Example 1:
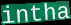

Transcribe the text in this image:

intha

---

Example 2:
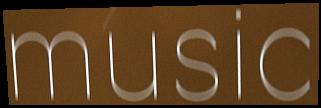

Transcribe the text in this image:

music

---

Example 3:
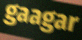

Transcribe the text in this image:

gaagar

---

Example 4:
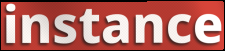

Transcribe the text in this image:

instance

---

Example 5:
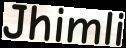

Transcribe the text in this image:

Jhimli